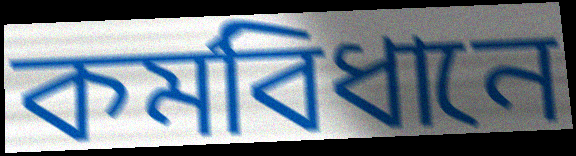
কর্মবিধানে